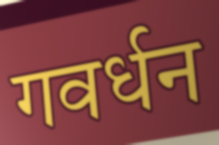
गवर्धन